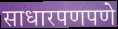
साधारपणपणे